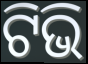
ଟିଭି